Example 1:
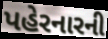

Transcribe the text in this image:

પહેરનારની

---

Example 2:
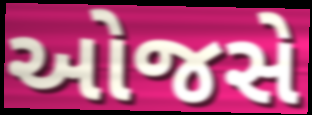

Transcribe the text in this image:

ઓજસે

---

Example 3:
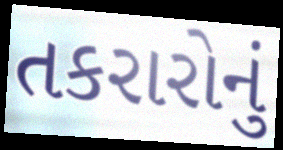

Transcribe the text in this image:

તકરારોનું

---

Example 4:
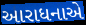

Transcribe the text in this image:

આરાધનાએ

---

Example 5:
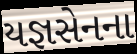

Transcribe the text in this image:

યજ્ઞસેનના